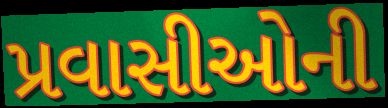
પ્રવાસીઓની